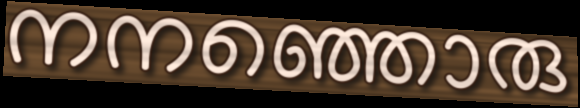
നനഞ്ഞൊരു